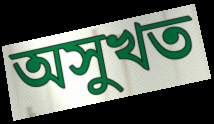
অসুখত